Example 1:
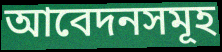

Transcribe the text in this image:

আবেদনসমূহ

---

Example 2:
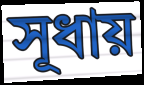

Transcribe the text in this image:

সূধায়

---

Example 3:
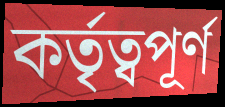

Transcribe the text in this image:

কর্তৃত্বপূর্ণ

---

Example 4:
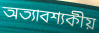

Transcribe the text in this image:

অত্যাবশ্যকীয়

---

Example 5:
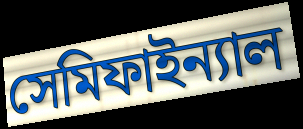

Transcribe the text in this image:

সেমিফাইন্যাল